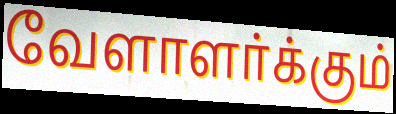
வேளாளர்க்கும்